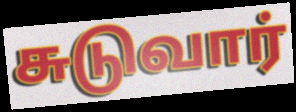
சுடுவார்